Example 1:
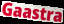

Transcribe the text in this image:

Gaastra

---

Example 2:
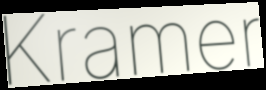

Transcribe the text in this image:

Kramer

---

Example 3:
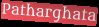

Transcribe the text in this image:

Patharghata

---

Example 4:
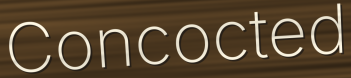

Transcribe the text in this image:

Concocted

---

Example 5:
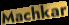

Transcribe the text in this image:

Machkar